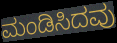
ಮಂಡಿಸಿದವು